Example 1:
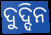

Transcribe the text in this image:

ଦୁଦ୍ଦିନ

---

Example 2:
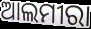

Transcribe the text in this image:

ଆଲମୀରା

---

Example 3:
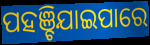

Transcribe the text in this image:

ପହଞ୍ଚିଯାଇପାରେ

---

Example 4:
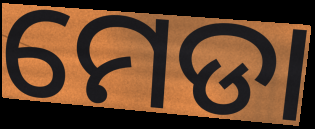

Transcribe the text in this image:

ମେଡା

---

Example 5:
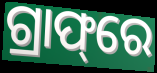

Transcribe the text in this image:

ଗ୍ରାଫ୍‌ରେ